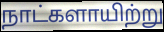
நாட்களாயிற்று